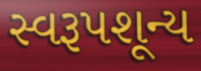
સ્વરૂપશૂન્ય